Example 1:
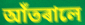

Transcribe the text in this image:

আঁতৰালে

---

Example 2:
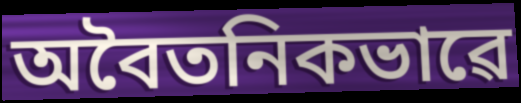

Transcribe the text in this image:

অবৈতনিকভাৱে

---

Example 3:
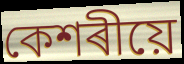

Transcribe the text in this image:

কেশৰীয়ে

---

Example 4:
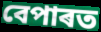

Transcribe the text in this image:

বেপাৰত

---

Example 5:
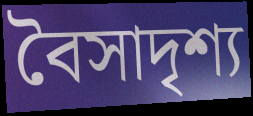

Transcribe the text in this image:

বৈসাদৃশ্য